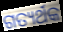
ଗତ୍ୟର୍ଥକ